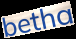
betha